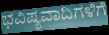
ಭವಿಷ್ಯವಾದಿಗಳಿಗೆ